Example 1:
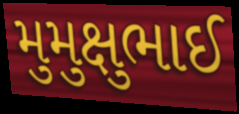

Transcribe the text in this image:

મુમુક્ષુભાઈ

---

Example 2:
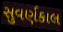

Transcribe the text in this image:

સુવર્ણકાલ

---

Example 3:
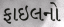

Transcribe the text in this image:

ફાઇલનો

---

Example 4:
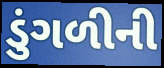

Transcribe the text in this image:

ડુંગળીની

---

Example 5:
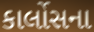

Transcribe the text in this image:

કાર્લોસના